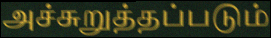
அச்சுறுத்தப்படும்